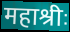
महाश्रीः